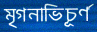
মৃগনাভিচূর্ণ